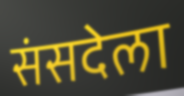
संसदेला